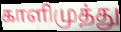
காளிமுத்து